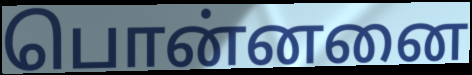
பொன்னனை